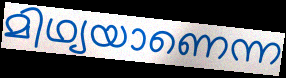
മിഥ്യയാണെന്ന